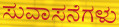
ಸುವಾಸನೆಗಳು